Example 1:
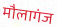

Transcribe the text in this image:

मौलागंज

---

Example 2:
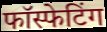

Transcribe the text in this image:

फॉस्फेटिंग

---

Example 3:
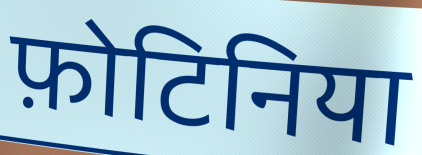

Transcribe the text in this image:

फ़ोटिनिया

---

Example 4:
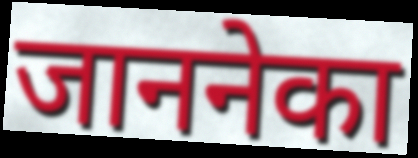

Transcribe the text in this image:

जाननेका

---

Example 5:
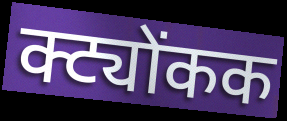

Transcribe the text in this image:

क्ट्योंकक